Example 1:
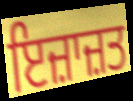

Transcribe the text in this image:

ਇਜ਼ਾਜ਼ਤ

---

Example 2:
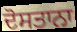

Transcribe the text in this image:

ਦੋਸਤਾਨਾ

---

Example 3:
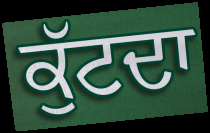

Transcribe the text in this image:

ਕੁੱਟਦਾ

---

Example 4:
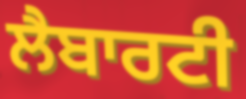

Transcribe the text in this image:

ਲੈਬਾਰਟੀ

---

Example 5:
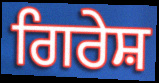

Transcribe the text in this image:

ਗਿਰੇਸ਼